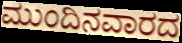
ಮುಂದಿನವಾರದ